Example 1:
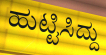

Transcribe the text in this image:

ಹುಟ್ಟಿಸಿದ್ದು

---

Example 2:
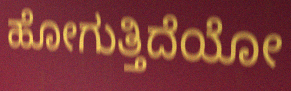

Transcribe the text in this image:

ಹೋಗುತ್ತಿದೆಯೋ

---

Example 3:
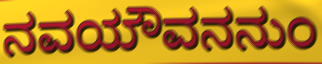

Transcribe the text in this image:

ನವಯೌವನನುಂ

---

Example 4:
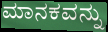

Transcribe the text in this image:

ಮಾನಕವನ್ನು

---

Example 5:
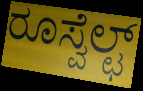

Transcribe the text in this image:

ರೂಸ್ವೆಲ್ಟ್